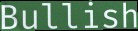
Bullish